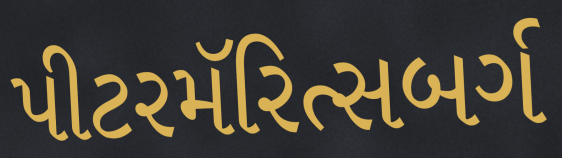
પીટરમૅરિત્સબર્ગ